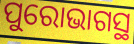
ପୁରୋଭାଗସ୍ଥ